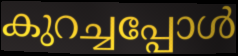
കുറച്ചപ്പോൾ